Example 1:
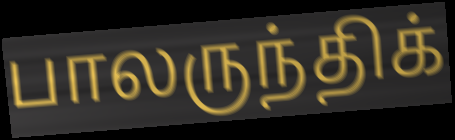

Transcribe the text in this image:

பாலருந்திக்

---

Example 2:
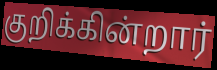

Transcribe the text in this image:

குறிக்கின்றார்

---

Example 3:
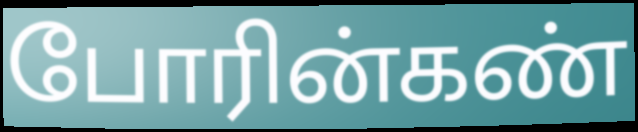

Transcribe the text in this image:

போரின்கண்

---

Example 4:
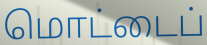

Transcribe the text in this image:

மொட்டைப்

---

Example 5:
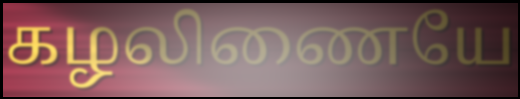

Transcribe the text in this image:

கழலிணையே